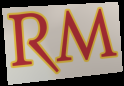
RM